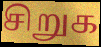
சிறுக